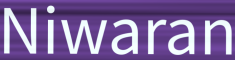
Niwaran